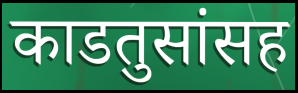
काडतुसांसह